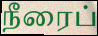
நீரைப்